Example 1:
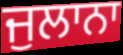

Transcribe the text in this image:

ਜੁਲਾਨਾ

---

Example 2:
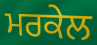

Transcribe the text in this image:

ਮਰਕੇਲ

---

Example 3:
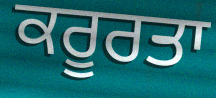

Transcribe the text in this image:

ਕਰੂਰਤਾ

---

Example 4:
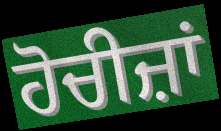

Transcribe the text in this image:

ਹੋਚੀਜ਼ਾਂ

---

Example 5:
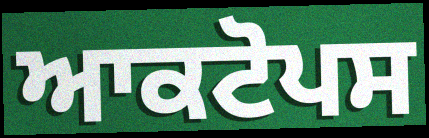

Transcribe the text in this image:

ਆਕਟੋਪਸ